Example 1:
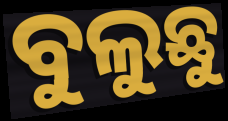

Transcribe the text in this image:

ବୁଲୁଛୁ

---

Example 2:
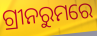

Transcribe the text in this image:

ଗ୍ରୀନରୁମରେ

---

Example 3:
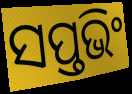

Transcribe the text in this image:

ସପ୍ତଭିଂ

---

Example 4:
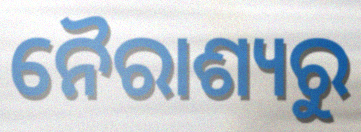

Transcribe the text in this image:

ନୈରାଶ୍ୟରୁ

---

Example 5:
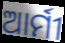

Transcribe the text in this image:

ଆର୍ମୀ